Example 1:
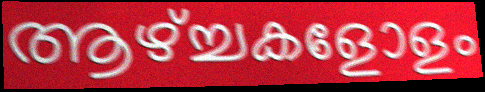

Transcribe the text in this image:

ആഴ്ച്ചകളോളം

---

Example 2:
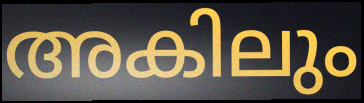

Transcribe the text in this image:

അകിലും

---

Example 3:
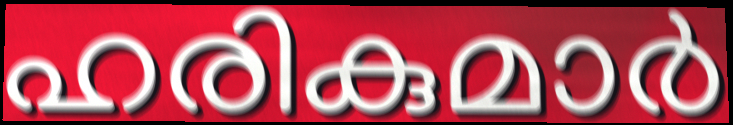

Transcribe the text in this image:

ഹരികുമാർ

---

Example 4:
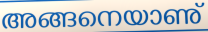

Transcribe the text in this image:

അങ്ങനെയാണു്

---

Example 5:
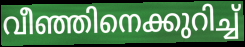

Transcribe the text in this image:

വീഞ്ഞിനെക്കുറിച്ച്